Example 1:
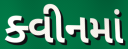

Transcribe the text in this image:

ક્વીનમાં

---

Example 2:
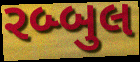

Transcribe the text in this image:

રબ્બુલ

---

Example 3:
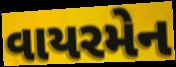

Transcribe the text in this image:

વાયરમેન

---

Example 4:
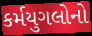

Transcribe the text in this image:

કર્મયુગલોનો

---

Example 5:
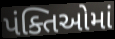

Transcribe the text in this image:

પંક્તિઓમાં